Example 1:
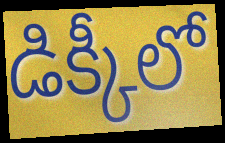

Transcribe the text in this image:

డిక్కీలో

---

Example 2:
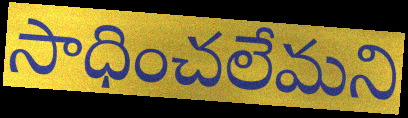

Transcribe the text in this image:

సాధించలేమని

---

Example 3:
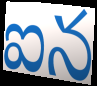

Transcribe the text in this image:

ఐన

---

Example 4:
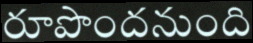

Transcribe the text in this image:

రూపొందనుంది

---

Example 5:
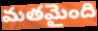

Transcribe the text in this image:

మతమైంది